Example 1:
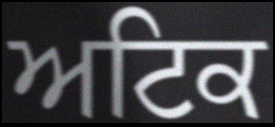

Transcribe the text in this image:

ਅਟਿਕ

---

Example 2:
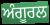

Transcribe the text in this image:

ਅੰਗੂਰਲ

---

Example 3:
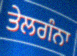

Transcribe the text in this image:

ਤੇਲਗੰਨਾ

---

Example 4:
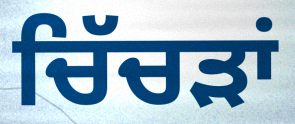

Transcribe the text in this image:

ਚਿੱਚੜਾਂ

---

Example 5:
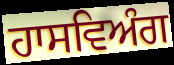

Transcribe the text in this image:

ਹਾਸਵਿਅੰਗ